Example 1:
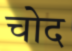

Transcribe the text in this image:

चोद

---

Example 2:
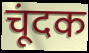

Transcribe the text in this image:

चूंदक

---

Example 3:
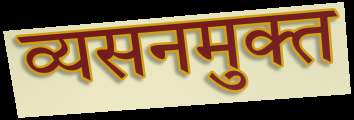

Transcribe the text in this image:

व्यसनमुक्त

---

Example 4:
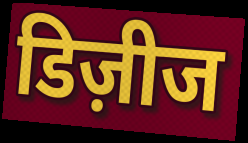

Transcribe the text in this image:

डिज़ीज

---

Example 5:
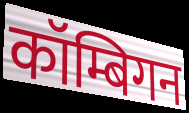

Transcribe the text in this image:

कॉम्बिगन